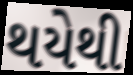
થયેથી